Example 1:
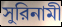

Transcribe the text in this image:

সুরিনামী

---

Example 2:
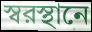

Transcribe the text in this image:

স্বরস্থানে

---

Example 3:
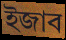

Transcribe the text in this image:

ইজাব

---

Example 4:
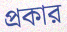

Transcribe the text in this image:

প্রকার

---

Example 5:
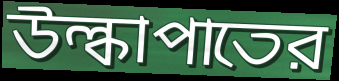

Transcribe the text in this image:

উল্কাপাতের